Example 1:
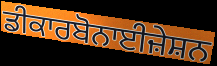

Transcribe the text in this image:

ਡੀਕਾਰਬੋਨਾਈਜ਼ੇਸ਼ਨ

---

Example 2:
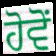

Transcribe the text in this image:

ਹੋਵੋਂ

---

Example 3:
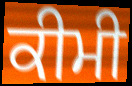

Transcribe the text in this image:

ਕੀਮੀ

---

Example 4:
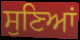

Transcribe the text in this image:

ਸੁਣਿਆਂ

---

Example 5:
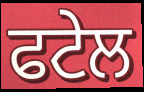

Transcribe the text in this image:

ਫਟੇਲ